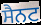
ਸੈਨਟ